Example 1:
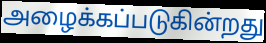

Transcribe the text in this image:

அழைக்கப்படுகின்றது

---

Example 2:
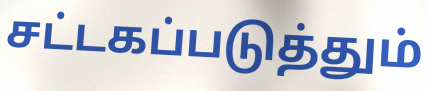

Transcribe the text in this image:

சட்டகப்படுத்தும்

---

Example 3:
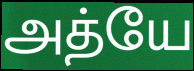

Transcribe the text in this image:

அத்யே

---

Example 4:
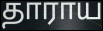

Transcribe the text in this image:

தாராய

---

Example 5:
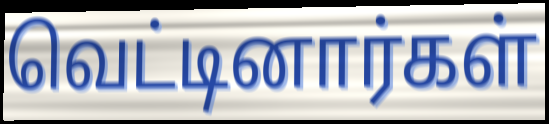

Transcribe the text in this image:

வெட்டினார்கள்